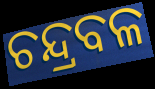
ଚନ୍ଦ୍ରବଳ